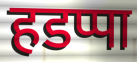
हडप्पा